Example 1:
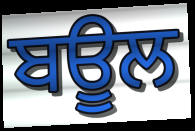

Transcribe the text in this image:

ਬਊਲ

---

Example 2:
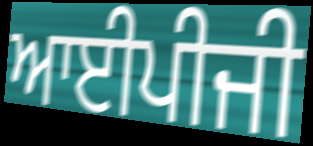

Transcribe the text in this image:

ਆਈਪੀਜੀ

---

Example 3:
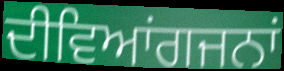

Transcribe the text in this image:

ਦੀਵਿਆਂਗਜਨਾਂ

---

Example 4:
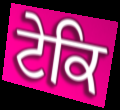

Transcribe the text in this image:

ਟੇਕਿ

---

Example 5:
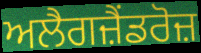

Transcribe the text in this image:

ਅਲੈਗਜ਼ੈਂਡਰੋਜ਼